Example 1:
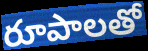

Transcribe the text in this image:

రూపాలతో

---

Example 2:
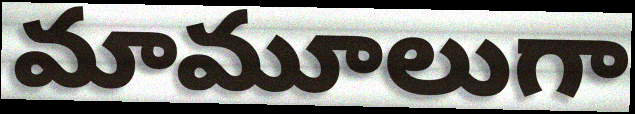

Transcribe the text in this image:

మామూలుగా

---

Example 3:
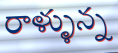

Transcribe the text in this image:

రాళ్ళున్న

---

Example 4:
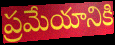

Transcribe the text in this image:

ప్రమేయానికి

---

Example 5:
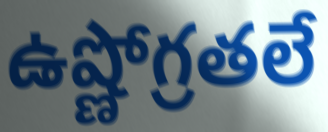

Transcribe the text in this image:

ఉష్ణోగ్రతలే